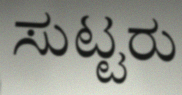
ಸುಟ್ಟರು